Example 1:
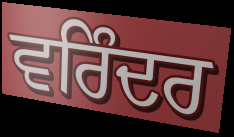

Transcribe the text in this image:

ਵਰਿੰਦਰ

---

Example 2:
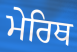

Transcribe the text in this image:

ਮੇਰਿਥ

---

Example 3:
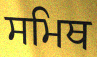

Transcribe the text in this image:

ਸਮਿਥ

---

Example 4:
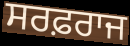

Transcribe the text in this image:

ਸਰਫ਼ਰਾਜ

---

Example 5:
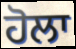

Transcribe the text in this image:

ਹੋਲਾ